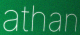
athan